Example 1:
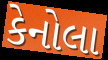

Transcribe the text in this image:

કેનોલા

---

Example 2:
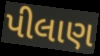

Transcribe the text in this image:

પીલાણ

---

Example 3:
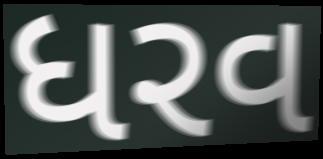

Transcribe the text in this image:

ધરવ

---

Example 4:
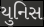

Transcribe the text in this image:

યુનિસ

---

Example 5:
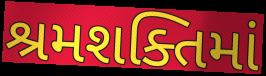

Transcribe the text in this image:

શ્રમશક્તિમાં